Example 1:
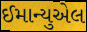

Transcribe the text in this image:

ઈમાન્યુએલ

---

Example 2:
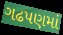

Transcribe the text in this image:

ગઢપણમાં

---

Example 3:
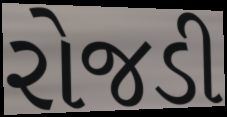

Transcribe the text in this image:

રોજડી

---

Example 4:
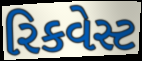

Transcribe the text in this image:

રિકવેસ્ટ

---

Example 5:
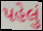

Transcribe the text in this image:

પહેલું